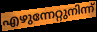
എഴുന്നേറ്റുനിന്ന്